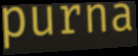
purna